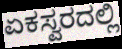
ಏಕಸ್ವರದಲ್ಲಿ